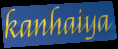
kanhaiya